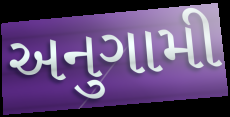
અનુગામી